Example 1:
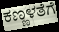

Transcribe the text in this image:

ಕಣ್ಣಳತೆಗೆ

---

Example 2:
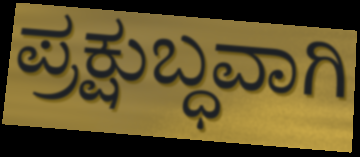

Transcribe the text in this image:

ಪ್ರಕ್ಷುಬ್ಧವಾಗಿ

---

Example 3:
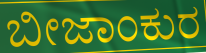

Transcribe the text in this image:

ಬೀಜಾಂಕುರ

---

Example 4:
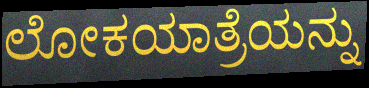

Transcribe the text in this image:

ಲೋಕಯಾತ್ರೆಯನ್ನು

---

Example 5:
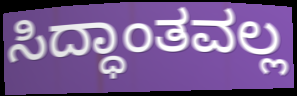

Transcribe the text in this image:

ಸಿದ್ಧಾಂತವಲ್ಲ